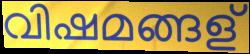
വിഷമങ്ങള്